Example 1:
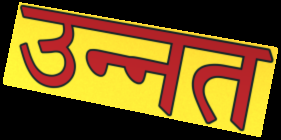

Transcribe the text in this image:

उन्‍नत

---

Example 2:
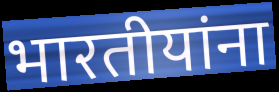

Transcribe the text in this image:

भारतीयांना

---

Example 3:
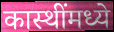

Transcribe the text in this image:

कास्थींमध्ये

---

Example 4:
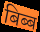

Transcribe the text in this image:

बिब्ब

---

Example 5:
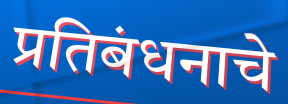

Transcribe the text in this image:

प्रतिबंधनाचे